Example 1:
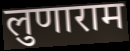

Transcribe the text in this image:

लुणाराम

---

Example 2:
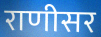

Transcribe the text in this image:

राणीसर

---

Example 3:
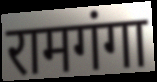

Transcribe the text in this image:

रामगंगा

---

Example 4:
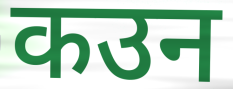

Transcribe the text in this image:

कउन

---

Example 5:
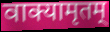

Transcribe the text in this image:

वाक्यामृतम्